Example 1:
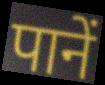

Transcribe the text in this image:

पानें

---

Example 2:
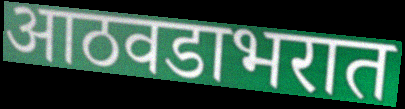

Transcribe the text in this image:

आठवडाभरात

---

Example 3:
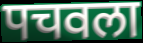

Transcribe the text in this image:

पचवला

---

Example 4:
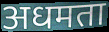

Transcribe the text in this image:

अधमता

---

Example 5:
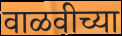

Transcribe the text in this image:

वाळवीच्या